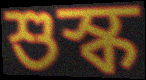
শুস্ক